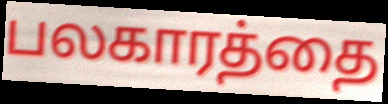
பலகாரத்தை